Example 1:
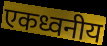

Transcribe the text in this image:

एकध्वनीय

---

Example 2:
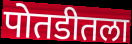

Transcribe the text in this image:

पोतडीतला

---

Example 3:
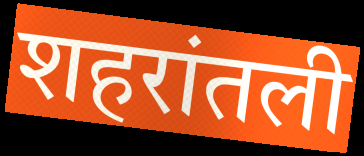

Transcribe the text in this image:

शहरांतली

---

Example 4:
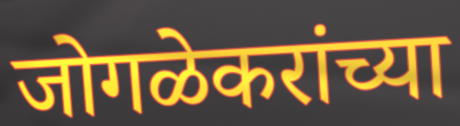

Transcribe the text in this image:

जोगळेकरांच्या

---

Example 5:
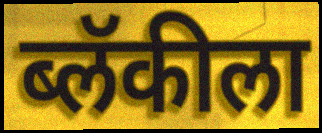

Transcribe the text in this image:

ब्लॅकीला